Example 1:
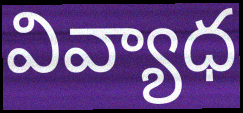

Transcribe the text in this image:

వివ్యాధ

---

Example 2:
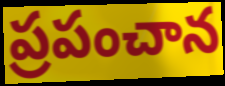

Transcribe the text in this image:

ప్రపంచాన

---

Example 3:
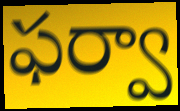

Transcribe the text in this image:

ఫర్వా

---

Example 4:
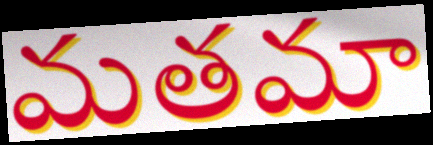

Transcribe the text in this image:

మతమా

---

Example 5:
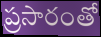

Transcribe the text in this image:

ప్రసారంతో